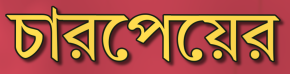
চারপেয়ের